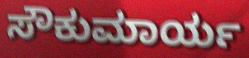
ಸೌಕುಮಾರ್ಯ